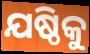
ଯଷ୍ଠିକୁ